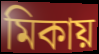
মিকায়